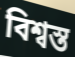
বিশ্বস্ত